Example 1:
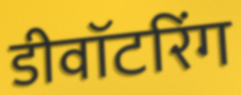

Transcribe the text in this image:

डीवॉटरिंग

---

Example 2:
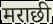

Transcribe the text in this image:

मराछी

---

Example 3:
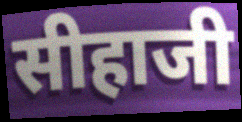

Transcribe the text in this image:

सीहाजी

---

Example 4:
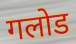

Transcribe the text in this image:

गलोड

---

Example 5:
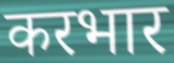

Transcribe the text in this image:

करभार